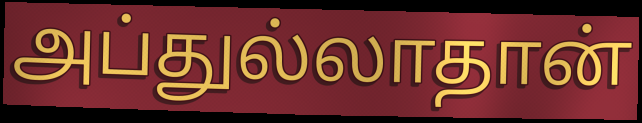
அப்துல்லாதான்